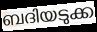
ബദിയടുക്ക